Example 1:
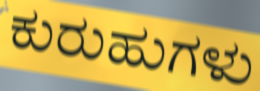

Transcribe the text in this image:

ಕುರುಹುಗಳು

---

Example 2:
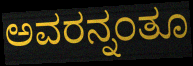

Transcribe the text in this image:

ಅವರನ್ನಂತೂ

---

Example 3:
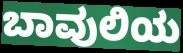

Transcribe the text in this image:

ಬಾವುಲಿಯ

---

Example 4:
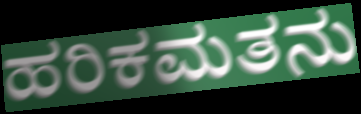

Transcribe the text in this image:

ಹರಿಕಮತನು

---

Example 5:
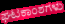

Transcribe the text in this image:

ಘಟಕಾಂಶಗಳು